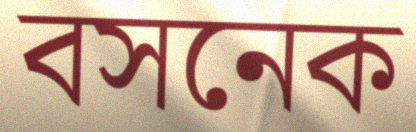
বসনেক